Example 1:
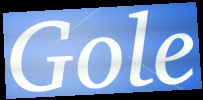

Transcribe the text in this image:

Gole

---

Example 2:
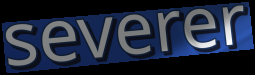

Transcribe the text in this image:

severer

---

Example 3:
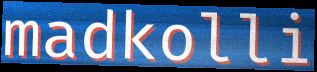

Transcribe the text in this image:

madkolli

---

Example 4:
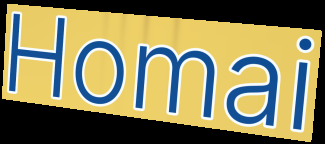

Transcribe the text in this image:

Homai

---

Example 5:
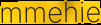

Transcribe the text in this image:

mmehie